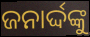
ଜନାର୍ଦ୍ଦଙ୍କୁ